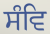
ਸੰਵਿ